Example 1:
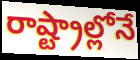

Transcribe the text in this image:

రాష్ట్రాల్లోనే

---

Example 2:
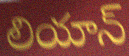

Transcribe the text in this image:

లియాన్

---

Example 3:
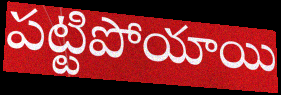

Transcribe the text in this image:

పట్టిపోయాయి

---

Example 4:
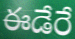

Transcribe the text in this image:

ఈడేరే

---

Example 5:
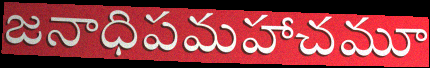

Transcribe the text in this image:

జనాధిపమహాచమూ